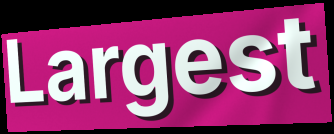
Largest